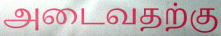
அடைவதற்கு